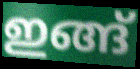
ഇങ്ങ്